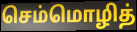
செம்மொழித்